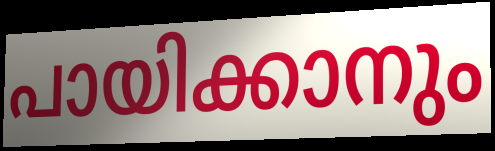
പായിക്കാനും